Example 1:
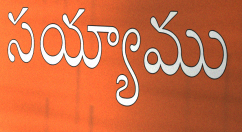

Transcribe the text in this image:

సయ్యాము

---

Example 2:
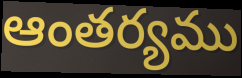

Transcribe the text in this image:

ఆంతర్యము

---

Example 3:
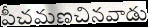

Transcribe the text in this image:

పీచమణచినవాడు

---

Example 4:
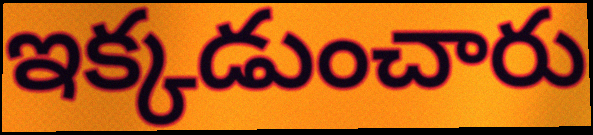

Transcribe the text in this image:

ఇక్కడుంచారు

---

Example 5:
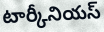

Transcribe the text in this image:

టార్కీనియస్